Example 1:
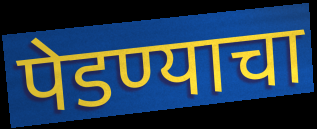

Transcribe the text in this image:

पेडण्याचा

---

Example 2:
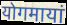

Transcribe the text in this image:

योगमायां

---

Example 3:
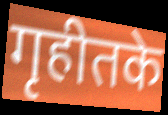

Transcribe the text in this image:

गृहीतके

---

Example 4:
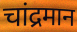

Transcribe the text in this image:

चांद्रमान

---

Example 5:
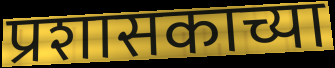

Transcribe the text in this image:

प्रशासकाच्या